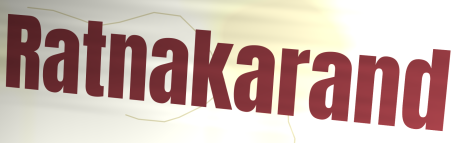
Ratnakarand